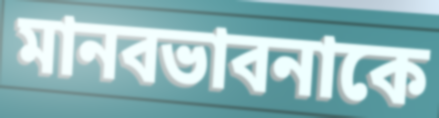
মানবভাবনাকে